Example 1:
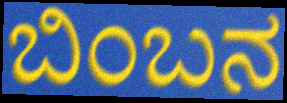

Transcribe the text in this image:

ಬಿಂಬನ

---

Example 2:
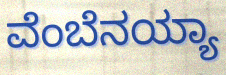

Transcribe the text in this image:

ವೆಂಬೆನಯ್ಯಾ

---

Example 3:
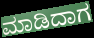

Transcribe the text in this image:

ಮಾಡಿದಾಗ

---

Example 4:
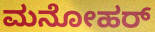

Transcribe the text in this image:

ಮನೋಹರ್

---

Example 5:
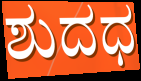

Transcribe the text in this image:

ಶುದಧ